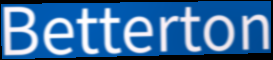
Betterton